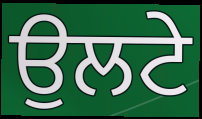
ਉਲਟੇ